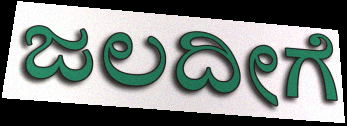
ಜಲದೀಗೆ